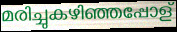
മരിച്ചുകഴിഞ്ഞപ്പോള്